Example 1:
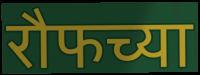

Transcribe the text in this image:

रौफच्या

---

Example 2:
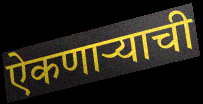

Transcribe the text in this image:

ऐकणार्‍याची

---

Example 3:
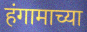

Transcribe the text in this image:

हंगामाच्या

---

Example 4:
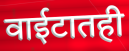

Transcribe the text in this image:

वाईटातही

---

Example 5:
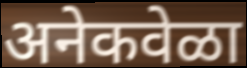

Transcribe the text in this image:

अनेकवेळा